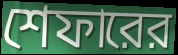
শেফারের